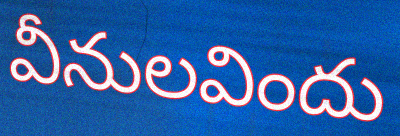
వీనులవిందు